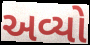
અવ્યો